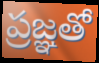
ప్రజ్ఞతో